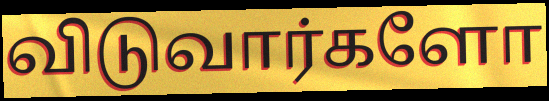
விடுவார்களோ